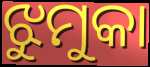
ଝୁମୁକା